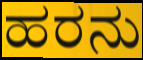
ಹರನು